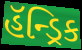
હૅન્ડ્રિક